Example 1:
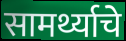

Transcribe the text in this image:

सामर्थ्याचे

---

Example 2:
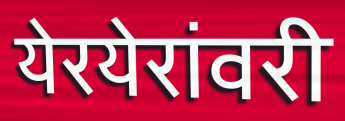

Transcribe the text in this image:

येरयेरांवरी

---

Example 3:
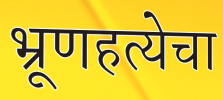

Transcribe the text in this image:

भ्रूणहत्येचा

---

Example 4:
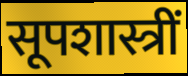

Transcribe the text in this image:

सूपशास्त्रीं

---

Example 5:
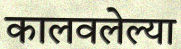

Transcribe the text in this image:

कालवलेल्या